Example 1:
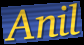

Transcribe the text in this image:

Anil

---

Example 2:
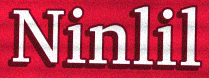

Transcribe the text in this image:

Ninlil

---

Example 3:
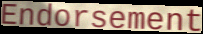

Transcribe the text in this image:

Endorsement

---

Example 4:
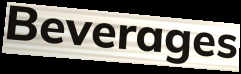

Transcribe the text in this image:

Beverages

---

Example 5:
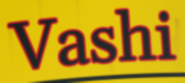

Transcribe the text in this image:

Vashi